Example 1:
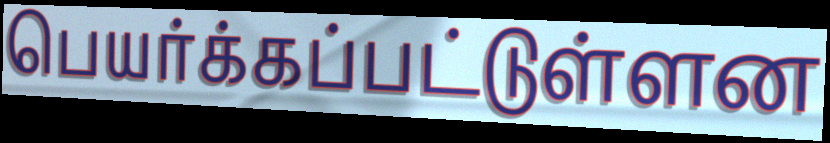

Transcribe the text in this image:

பெயர்க்கப்பட்டுள்ளன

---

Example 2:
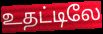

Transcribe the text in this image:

உதட்டிலே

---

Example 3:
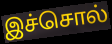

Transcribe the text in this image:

இச்சொல்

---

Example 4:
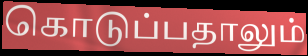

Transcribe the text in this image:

கொடுப்பதாலும்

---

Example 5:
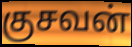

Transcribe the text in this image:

குசவன்